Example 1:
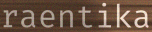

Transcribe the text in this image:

raentika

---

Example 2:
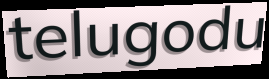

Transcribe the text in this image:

telugodu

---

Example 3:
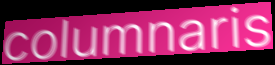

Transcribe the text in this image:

columnaris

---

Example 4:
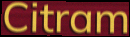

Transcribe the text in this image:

Citram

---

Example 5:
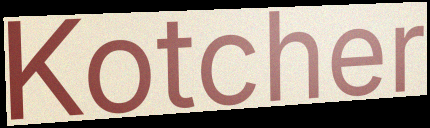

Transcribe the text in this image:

Kotcher